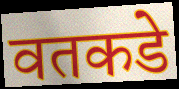
वतकडे